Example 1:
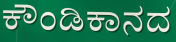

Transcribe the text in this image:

ಕೌಂಡಿಕಾನದ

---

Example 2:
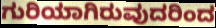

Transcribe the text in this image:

ಗುರಿಯಾಗಿರುವುದರಿಂದ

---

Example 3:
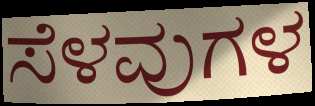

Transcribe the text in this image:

ಸೆಳವುಗಳ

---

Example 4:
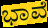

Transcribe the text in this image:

ಭಾವೆ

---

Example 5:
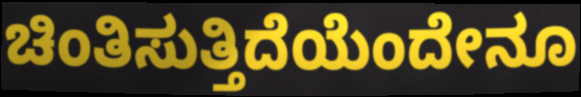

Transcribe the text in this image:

ಚಿಂತಿಸುತ್ತಿದೆಯೆಂದೇನೂ